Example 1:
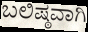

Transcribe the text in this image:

ಬಲಿಷ್ಠವಾಗಿ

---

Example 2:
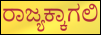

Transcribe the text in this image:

ರಾಜ್ಯಕ್ಕಾಗಲಿ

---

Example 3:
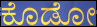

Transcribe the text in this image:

ಕೊಡೋ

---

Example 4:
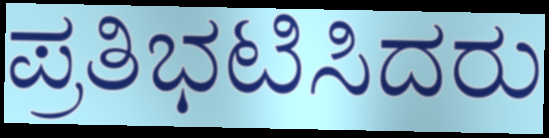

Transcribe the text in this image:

ಪ್ರತಿಭಟಿಸಿದರು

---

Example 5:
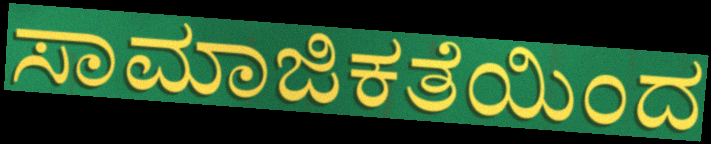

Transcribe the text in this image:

ಸಾಮಾಜಿಕತೆಯಿಂದ